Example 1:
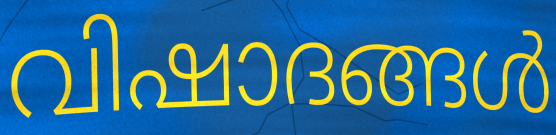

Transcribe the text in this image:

വിഷാദങ്ങൾ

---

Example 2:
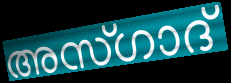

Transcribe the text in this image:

അസ്ഗാദ്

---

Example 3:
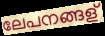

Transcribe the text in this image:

ലേപനങ്ങള്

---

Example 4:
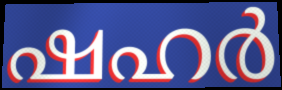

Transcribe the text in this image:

ഷഹർ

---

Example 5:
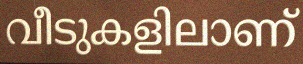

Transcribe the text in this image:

വീടുകളിലാണ്